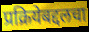
प्रक्रियेबद्दलचा